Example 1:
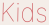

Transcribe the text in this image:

Kids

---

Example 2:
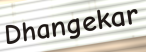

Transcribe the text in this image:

Dhangekar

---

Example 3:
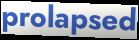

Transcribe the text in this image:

prolapsed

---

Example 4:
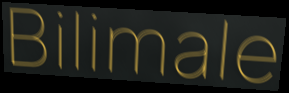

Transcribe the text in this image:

Bilimale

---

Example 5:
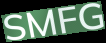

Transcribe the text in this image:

SMFG